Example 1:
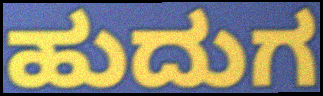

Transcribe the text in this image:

ಹುದುಗ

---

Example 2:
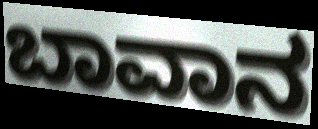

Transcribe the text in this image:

ಬಾವಾನ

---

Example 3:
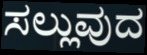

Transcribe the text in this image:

ಸಲ್ಲುವುದ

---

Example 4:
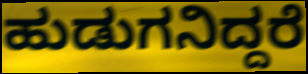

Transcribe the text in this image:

ಹುಡುಗನಿದ್ದರೆ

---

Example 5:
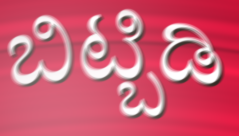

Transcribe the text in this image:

ಬಿಟ್ಬಿಡಿ